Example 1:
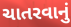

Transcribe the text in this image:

ચાતરવાનું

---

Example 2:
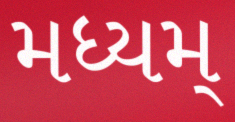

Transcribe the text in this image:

મધ્યમ્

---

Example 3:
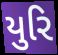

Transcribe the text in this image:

યુરિ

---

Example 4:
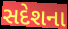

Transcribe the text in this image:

સદેશના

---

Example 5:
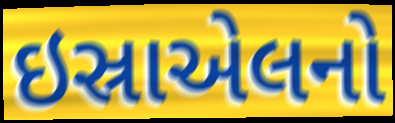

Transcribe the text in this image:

ઇસ્રાએલનો